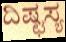
ದಿಷ್ಟಸ್ಯ